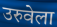
उरुवेला